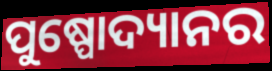
ପୁଷ୍ପୋଦ୍ୟାନର